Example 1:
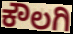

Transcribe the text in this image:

ಕೌಲಗಿ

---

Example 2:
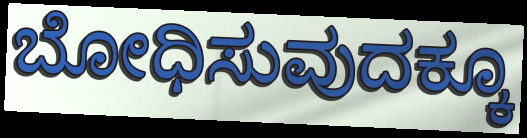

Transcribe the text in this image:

ಬೋಧಿಸುವುದಕ್ಕೂ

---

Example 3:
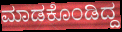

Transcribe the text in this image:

ಮಾಡಕೊಂಡಿದ್ದ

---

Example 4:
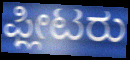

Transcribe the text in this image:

ಫ್ಲೀಟರು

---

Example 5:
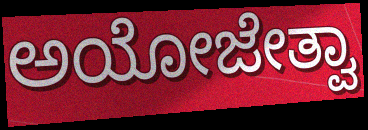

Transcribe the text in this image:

ಅಯೋಜೇತ್ವಾ